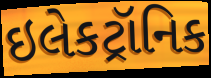
ઇલેકટ્રૉનિક